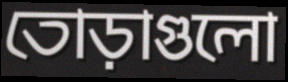
তোড়াগুলো